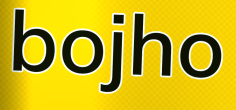
bojho